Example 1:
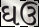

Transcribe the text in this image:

ઘઉ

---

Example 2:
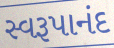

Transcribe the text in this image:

સ્વરૂપાનંદ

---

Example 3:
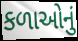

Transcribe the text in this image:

કળાઓનું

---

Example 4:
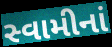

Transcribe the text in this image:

સ્વામીનાં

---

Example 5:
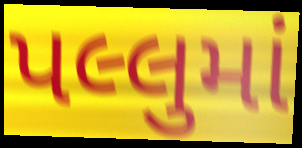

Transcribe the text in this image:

પલ્લુમાં